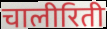
चालीरिती